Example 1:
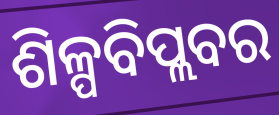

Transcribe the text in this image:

ଶିଳ୍ପବିପ୍ଲବର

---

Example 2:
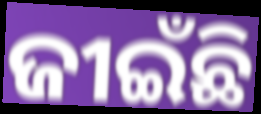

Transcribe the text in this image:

ଜୀଇଁଛି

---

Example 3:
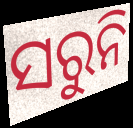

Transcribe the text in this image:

ସରୁନି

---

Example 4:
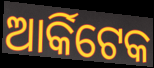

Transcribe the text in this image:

ଆର୍କିଟେକ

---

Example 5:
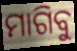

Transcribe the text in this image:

ମାଗିବୁ